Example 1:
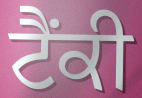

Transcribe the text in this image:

ਟੈਂਕੀ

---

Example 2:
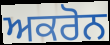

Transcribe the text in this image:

ਅਕਰੋਨ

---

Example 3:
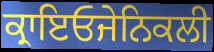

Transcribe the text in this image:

ਕ੍ਰਾਇਓਜੇਨਿਕਲੀ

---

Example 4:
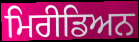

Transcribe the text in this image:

ਮਿਰੀਡਿਅਨ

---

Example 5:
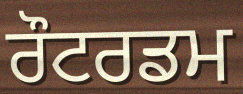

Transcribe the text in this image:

ਰੌਟਰਡਮ